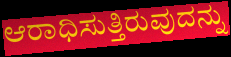
ಆರಾಧಿಸುತ್ತಿರುವುದನ್ನು